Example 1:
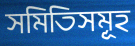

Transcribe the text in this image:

সমিতিসমূহ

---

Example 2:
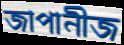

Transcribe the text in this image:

জাপানীজ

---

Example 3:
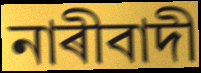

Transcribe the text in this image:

নাৰীবাদী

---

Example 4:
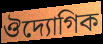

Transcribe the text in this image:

ঔদ্যোগিক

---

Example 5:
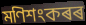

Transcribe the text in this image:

মণিশংকৰৰ